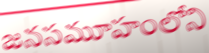
జనసమూహంలోని